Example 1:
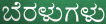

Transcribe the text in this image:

ಬೆರಳುಗಳು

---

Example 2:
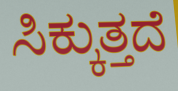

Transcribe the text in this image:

ಸಿಕ್ಕುತ್ತದೆ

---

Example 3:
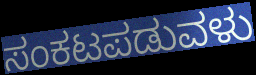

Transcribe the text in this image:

ಸಂಕಟಪಡುವಳು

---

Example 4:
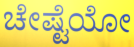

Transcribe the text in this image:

ಚೇಷ್ಟೆಯೋ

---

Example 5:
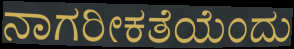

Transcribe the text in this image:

ನಾಗರೀಕತೆಯೆಂದು